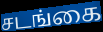
சடங்கை